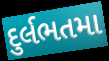
દુર્લભતમા